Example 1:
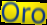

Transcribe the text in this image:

Oro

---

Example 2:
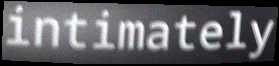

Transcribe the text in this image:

intimately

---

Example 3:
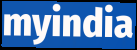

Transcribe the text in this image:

myindia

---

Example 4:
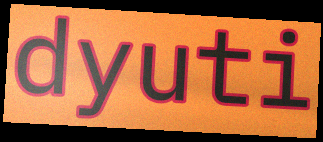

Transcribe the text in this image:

dyuti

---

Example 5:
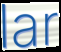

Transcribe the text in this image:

lar